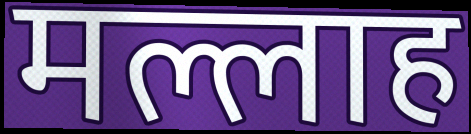
मल्लाह